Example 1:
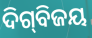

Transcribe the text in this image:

ଦିଗ୍‍ବିଜୟ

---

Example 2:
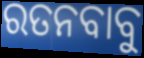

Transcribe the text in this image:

ରତନବାବୁ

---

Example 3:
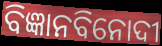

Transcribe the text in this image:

ବିଜ୍ଞାନବିନୋଦୀ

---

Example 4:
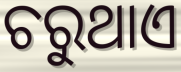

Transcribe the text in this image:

ଚରୁଥାଏ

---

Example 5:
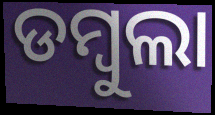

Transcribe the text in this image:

ଡମ୍ୱୁଲା